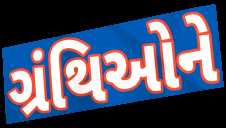
ગ્રંથિઓને